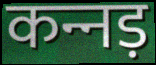
कन्‍नड़